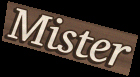
Mister